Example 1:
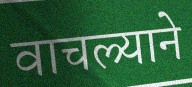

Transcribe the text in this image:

वाचल्याने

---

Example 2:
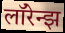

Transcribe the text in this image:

लॉरेन्झ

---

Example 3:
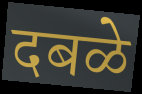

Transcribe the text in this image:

दबळे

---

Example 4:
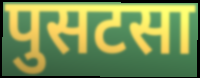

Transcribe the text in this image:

पुसटसा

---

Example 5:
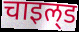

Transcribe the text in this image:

चाइल्ड